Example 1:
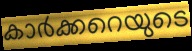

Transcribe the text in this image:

കാർക്കറെയുടെ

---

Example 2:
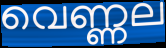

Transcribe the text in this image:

വെണ്ണല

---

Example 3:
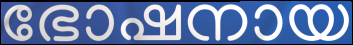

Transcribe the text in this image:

ഭോഷനായ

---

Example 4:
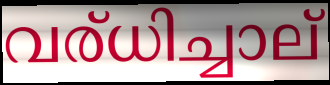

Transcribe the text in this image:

വര്ധിച്ചാല്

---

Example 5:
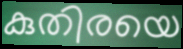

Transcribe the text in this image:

കുതിരയെ